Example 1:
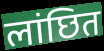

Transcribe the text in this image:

लांछित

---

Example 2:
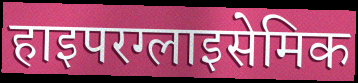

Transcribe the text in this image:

हाइपरग्लाइसेमिक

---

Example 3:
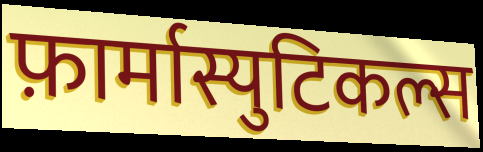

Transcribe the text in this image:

फ़ार्मास्युटिकल्स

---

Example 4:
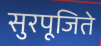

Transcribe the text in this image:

सुरपूजिते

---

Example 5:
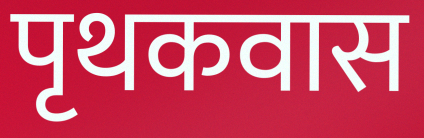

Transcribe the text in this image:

पृथकवास